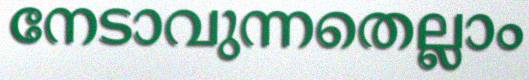
നേടാവുന്നതെല്ലാം